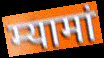
म्यामां